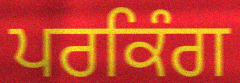
ਪਰਕਿੰਗ